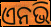
ଏନଭି